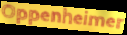
Oppenheimer